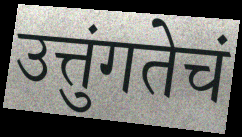
उत्तुंगतेचं